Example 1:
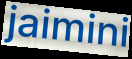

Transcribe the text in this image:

jaimini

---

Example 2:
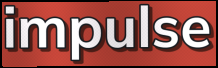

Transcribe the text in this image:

impulse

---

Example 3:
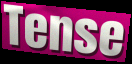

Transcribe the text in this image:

Tense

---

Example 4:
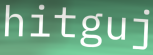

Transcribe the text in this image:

hitguj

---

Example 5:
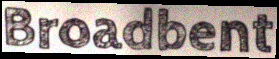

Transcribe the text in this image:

Broadbent